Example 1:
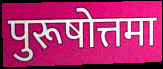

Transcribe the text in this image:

पुरूषोत्तमा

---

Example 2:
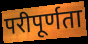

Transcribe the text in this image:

परीपूर्णता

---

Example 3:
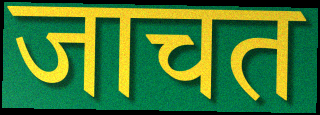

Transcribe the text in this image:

जाचत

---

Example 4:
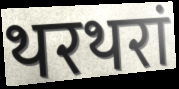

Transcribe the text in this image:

थरथरां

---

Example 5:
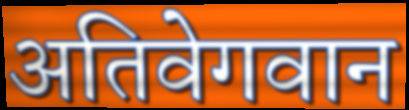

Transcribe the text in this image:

अतिवेगवान